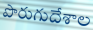
పొరుగుదేశాల